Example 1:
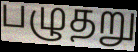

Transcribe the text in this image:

பழுதறு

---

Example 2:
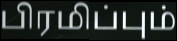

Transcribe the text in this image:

பிரமிப்பும்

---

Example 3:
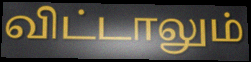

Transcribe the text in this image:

விட்டாலும்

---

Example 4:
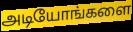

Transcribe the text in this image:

அடியோங்களை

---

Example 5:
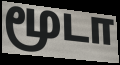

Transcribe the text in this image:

மூடா